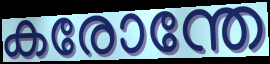
കരോന്തേ